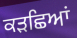
ਕੜਛਿਆਂ